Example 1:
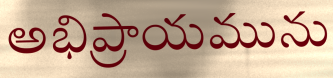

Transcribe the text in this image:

అభిప్రాయమును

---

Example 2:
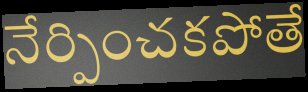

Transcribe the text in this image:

నేర్పించకపోతే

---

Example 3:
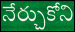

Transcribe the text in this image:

నేర్చుకోని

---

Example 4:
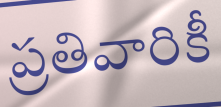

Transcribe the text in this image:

ప్రతివారికీ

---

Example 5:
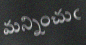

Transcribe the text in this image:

మన్నించుఁ